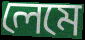
লেমে